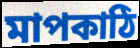
মাপকাঠি